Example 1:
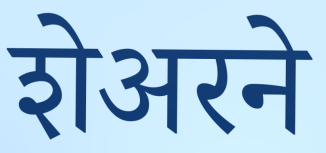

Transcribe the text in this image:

शेअरने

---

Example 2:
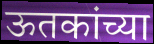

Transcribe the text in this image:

ऊतकांच्या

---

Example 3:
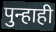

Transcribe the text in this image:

पुन्हाही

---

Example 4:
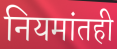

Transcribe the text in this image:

नियमांतही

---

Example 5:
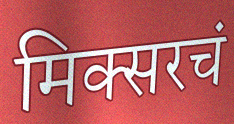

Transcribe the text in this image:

मिक्सरचं